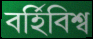
বর্হিবিশ্ব